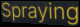
Spraying